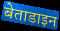
बेताडाइन